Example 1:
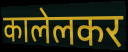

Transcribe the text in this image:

कालेलकर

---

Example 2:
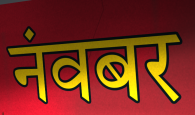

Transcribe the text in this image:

नंवबर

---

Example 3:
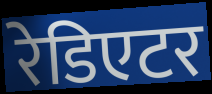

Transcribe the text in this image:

रेडिएटर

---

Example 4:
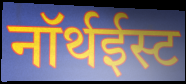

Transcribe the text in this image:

नॉर्थईस्‍ट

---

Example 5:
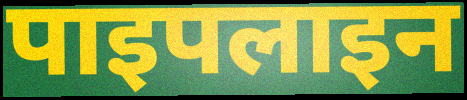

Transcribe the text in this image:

पाइपलाइन